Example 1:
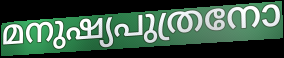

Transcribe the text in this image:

മനുഷ്യപുത്രനോ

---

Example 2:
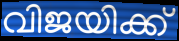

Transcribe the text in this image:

വിജയിക്ക്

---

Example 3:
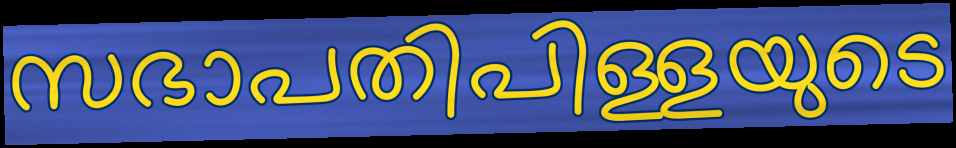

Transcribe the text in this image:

സഭാപതിപിള്ളയുടെ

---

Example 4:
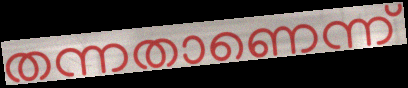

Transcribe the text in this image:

തന്നതാണെന്ന്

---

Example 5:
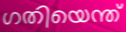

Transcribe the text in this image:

ഗതിയെന്ത്